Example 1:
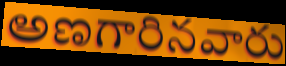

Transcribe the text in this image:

అణగారినవారు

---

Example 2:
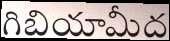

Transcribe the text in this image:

గిబియామీద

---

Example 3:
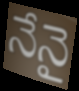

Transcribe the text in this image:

నేనై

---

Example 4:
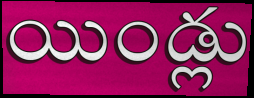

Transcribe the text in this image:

యిండ్లు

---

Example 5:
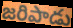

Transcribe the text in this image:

జరిపాడు